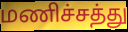
மணிச்சத்து